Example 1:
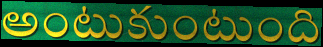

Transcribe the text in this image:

అంటుకుంటుంది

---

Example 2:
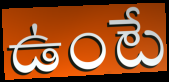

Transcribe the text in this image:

ఉంటే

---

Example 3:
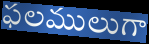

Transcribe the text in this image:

ఫలములుగా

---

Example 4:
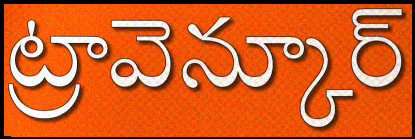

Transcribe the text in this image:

ట్రావెన్కూర్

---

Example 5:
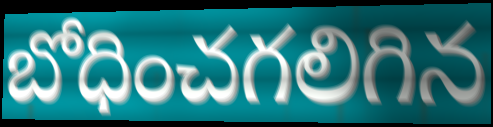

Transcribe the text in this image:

బోధించగలిగిన